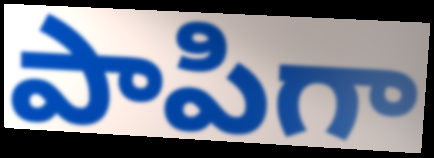
పాపిగా